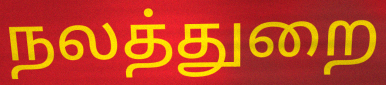
நலத்துறை